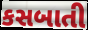
કસબાતી